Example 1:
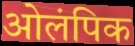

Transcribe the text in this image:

ओलंपिक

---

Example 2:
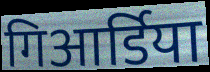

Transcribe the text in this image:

गिआर्डिया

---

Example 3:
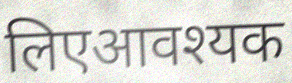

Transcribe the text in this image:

लिएआवश्यक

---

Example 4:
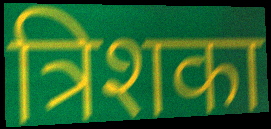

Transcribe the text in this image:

त्रिशका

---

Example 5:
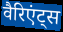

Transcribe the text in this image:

वैरिएंट्स